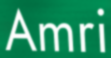
Amri